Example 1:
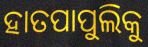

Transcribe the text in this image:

ହାତପାପୁଲିକୁ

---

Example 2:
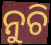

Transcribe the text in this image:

ନୁଚି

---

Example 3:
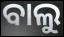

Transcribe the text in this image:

ବାଲୁ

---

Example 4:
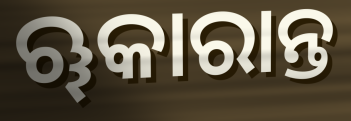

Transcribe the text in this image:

ୠକାରାନ୍ତ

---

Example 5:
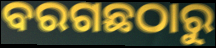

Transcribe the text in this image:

ବରଗଛଠାରୁ